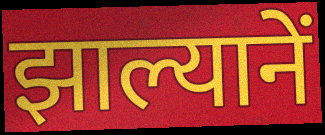
झाल्यानें